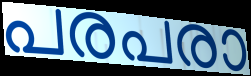
പരപരാ